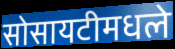
सोसायटीमधले